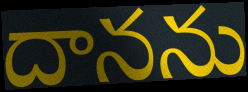
దానను